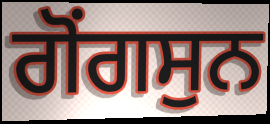
ਗੋਂਗਸੁਨ